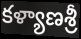
కళ్యాణశ్రీ